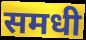
समधी